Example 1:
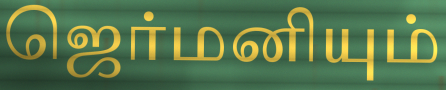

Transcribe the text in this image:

ஜெர்மனியும்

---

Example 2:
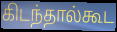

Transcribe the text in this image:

கிடந்தால்கூட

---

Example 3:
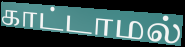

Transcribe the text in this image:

காட்டாமல்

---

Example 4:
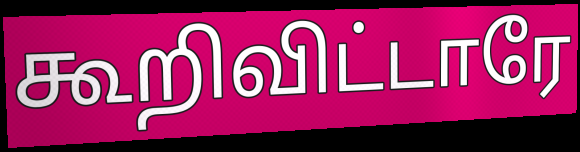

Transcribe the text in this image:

கூறிவிட்டாரே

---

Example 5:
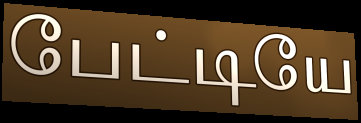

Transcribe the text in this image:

பேட்டியே